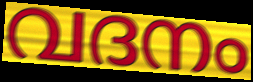
വദനം